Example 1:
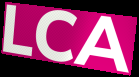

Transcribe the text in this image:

LCA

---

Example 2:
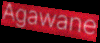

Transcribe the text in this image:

Agawane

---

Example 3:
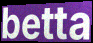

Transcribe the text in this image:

betta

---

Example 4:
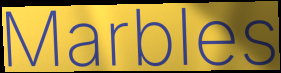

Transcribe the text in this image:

Marbles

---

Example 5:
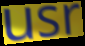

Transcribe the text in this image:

usr